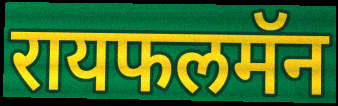
रायफलमॅन